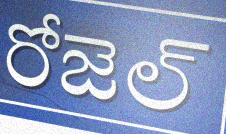
రోజెల్